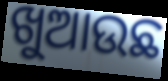
ଖୁଆଉଛ